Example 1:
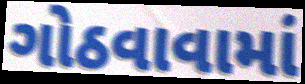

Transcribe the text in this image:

ગોઠવાવામાં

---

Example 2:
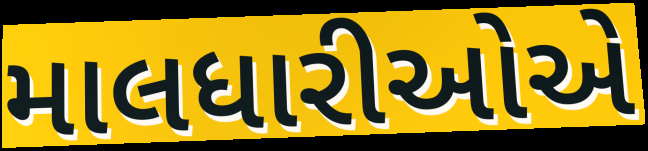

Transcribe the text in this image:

માલધારીઓએ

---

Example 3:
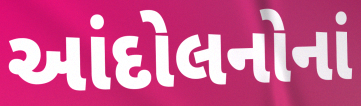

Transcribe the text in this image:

આંદોલનોનાં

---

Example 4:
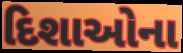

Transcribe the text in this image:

દિશાઓના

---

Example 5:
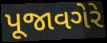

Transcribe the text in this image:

પૂજાવગેરે